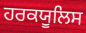
ਹਰਕਯੂਲਿਸ